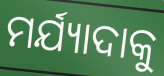
ମର୍ଯ୍ୟାଦାକୁ